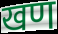
खण